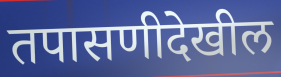
तपासणीदेखील